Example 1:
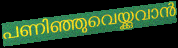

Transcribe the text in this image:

പണിഞ്ഞുവെയ്ക്കുവാൻ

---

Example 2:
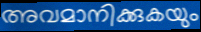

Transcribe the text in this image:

അവമാനിക്കുകയും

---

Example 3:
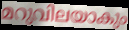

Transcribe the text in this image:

മറുവിലയാകും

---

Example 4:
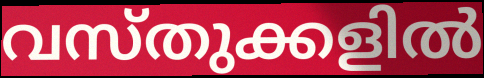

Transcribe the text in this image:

വസ്തുക്കളിൽ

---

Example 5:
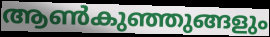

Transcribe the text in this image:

ആൺകുഞ്ഞുങ്ങളും